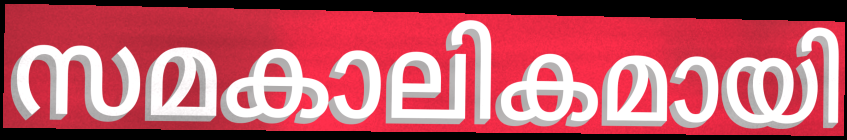
സമകാലികമായി